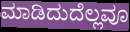
ಮಾಡಿದುದೆಲ್ಲವೂ